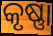
କୃଷ୍ଣା